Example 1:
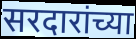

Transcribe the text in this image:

सरदारांच्या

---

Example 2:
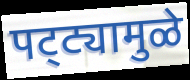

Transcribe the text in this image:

पट्ट्यामुळे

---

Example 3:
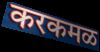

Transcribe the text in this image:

करकमळ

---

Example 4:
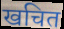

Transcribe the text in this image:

खचित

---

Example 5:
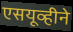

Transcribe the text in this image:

एसयूव्हीने